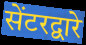
सेंटरद्वारे